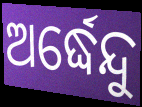
ଅର୍ଦ୍ଧେନ୍ଦୁ